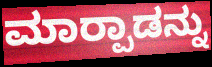
ಮಾರ‍್ಪಾಡನ್ನು